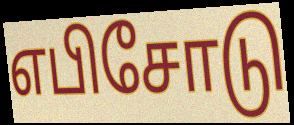
எபிசோடு